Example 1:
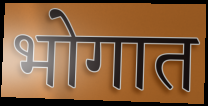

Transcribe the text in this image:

भोगात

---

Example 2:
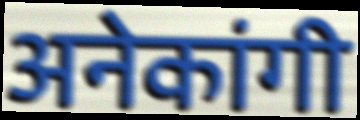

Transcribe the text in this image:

अनेकांगी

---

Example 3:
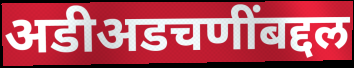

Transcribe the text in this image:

अडीअडचणींबद्दल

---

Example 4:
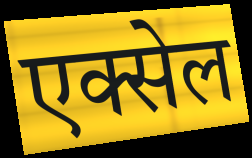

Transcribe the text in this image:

एक्सेल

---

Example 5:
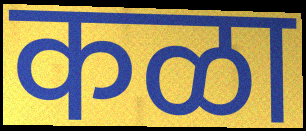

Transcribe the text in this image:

कळा